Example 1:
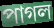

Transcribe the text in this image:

পাগল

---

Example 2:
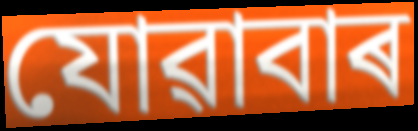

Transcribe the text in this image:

যোৱাবাৰ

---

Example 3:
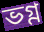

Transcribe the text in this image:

ভগ্ন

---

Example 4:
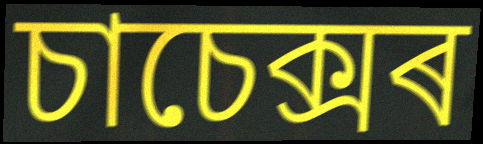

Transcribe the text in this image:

চাচেক্সৰ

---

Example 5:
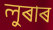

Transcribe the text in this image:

লুৰাৰ